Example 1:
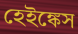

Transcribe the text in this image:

হেইঙ্কেস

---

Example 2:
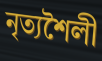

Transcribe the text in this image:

নৃত্যশৈলী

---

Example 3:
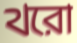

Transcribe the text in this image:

থরো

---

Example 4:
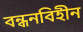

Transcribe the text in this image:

বন্ধনবিহীন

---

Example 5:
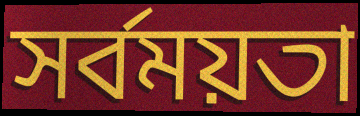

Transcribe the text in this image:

সর্বময়তা